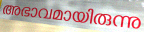
അഭാവമായിരുന്നു